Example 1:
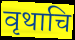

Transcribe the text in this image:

वृथाचि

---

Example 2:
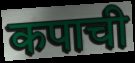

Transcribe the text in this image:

कपाची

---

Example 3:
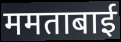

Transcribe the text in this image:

ममताबाई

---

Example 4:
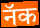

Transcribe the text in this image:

नॅक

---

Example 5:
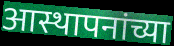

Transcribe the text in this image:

आस्थापनांच्या